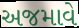
અજમાવે